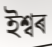
ইশ্বৰ